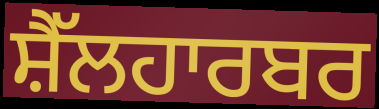
ਸ਼ੈੱਲਹਾਰਬਰ